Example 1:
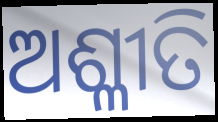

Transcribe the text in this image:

ଅଶ୍ଳୀତି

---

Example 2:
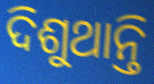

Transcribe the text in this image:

ଦିଶୁଥାନ୍ତି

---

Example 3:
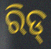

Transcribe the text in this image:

ରିଡ୍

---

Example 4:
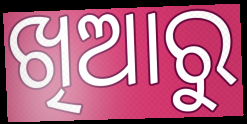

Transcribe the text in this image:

ଖିଆରୁ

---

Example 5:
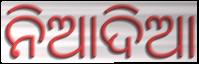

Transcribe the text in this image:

ନିଆଦିଆ